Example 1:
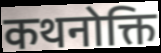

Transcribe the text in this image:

कथनोक्ति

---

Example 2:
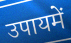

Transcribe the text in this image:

उपायमें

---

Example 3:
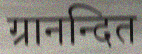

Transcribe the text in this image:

ग्रानन्दित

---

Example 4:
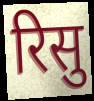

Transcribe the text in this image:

रिसु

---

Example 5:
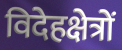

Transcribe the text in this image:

विदेहक्षेत्रों